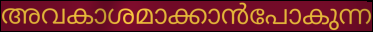
അവകാശമാക്കാൻപോകുന്ന